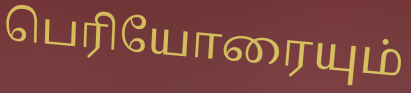
பெரியோரையும்